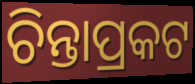
ଚିନ୍ତାପ୍ରକଟ